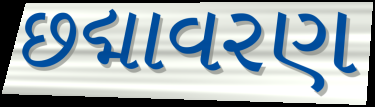
છદ્માવરણ